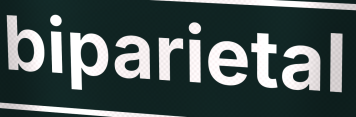
biparietal